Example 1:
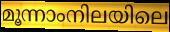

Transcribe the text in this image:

മൂന്നാംനിലയിലെ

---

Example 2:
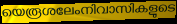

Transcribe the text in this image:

യെരൂശലേംനിവാസികളുടെ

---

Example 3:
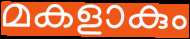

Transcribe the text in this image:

മകളാകും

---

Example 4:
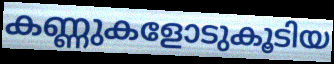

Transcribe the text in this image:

കണ്ണുകളോടുകൂടിയ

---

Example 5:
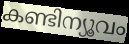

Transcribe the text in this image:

കണ്ടിന്യൂവം